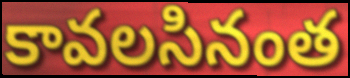
కావలసినంత